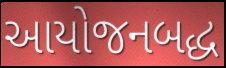
આયોજનબદ્ધ